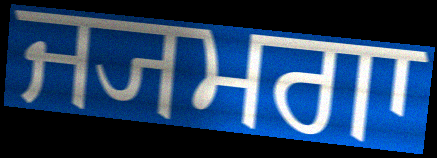
ਜ੍ਯਮਗਾ